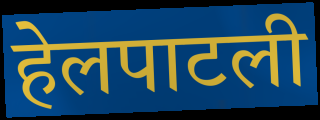
हेलपाटली